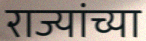
राज्यांच्या